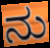
ನು